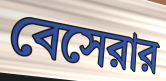
বেসেরার